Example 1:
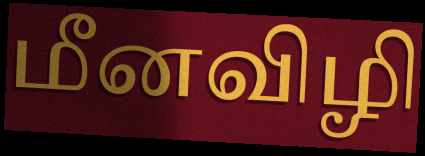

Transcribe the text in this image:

மீனவிழி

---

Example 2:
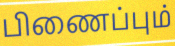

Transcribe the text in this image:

பிணைப்பும்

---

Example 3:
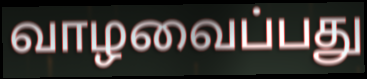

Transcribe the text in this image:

வாழவைப்பது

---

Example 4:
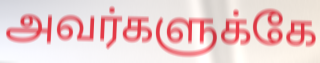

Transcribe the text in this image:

அவர்களுக்கே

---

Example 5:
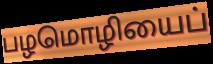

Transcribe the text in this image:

பழமொழியைப்